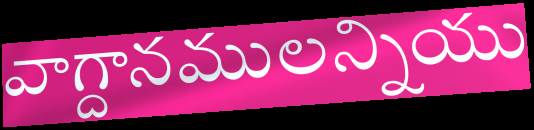
వాగ్దానములన్నియు